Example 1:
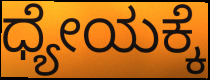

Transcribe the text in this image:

ಧ್ಯೇಯಕ್ಕೆ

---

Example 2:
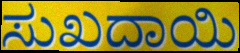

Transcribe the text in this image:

ಸುಖದಾಯಿ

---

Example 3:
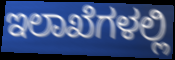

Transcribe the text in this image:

ಇಲಾಖೆಗಳಲ್ಲಿ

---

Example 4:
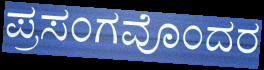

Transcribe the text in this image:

ಪ್ರಸಂಗವೊಂದರ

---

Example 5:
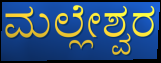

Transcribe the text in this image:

ಮಲ್ಲೇಶ್ವರ